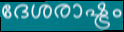
ദേശരാഷ്ട്രം